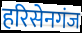
हरिसेनगंज